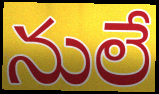
నులే